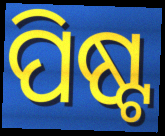
ପିଷ୍ଟ